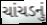
ચાંચડનું